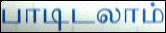
பாடிடலாம்